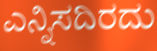
ಎನ್ನಿಸದಿರದು